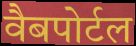
वैबपोर्टल